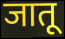
जातू